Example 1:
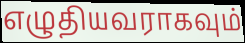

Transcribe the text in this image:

எழுதியவராகவும்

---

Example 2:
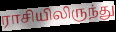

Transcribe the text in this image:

ராசியிலிருந்து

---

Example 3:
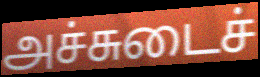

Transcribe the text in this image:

அச்சுடைச்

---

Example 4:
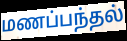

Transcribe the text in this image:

மணப்பந்தல்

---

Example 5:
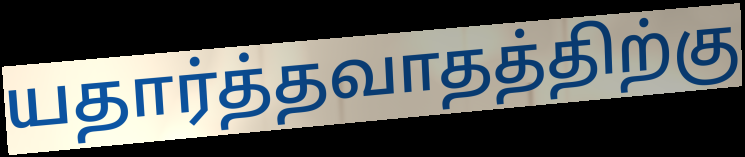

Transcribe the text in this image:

யதார்த்தவாதத்திற்கு